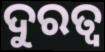
ଦୁରତ୍ଵ